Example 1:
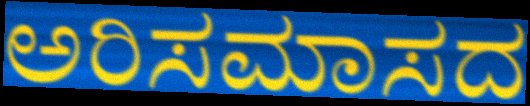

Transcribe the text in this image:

ಅರಿಸಮಾಸದ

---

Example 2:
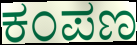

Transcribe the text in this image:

ಕಂಪಣ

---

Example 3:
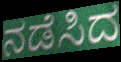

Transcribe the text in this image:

ನಡೆಸಿದ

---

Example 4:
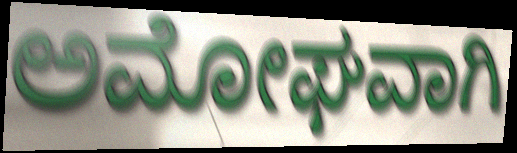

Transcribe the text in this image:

ಅಮೋಘವಾಗಿ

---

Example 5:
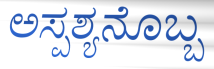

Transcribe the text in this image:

ಅಸ್ಪಶ್ಯನೊಬ್ಬ